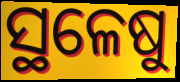
ସ୍ଥଳେଷୁ